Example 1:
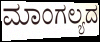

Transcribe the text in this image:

ಮಾಂಗಲ್ಯದ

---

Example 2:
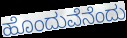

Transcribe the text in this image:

ಹೊಂದುವೆನೆಂದು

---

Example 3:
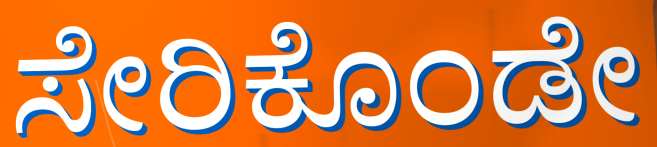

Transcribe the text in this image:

ಸೇರಿಕೊಂಡೇ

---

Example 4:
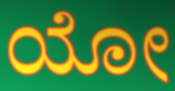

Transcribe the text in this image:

ಯೋ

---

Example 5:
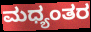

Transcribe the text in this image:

ಮಧ್ಯಂತರ